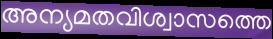
അന്യമതവിശ്വാസത്തെ